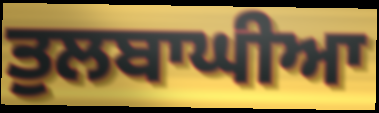
ਤੁਲਬਾਘੀਆ